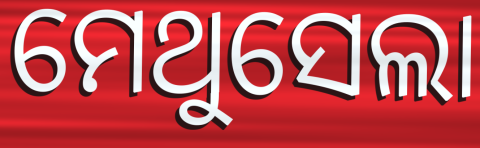
ମେଥୁସେଲା